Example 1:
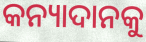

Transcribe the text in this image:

କନ୍ୟାଦାନକୁ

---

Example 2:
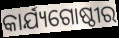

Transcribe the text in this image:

କାର୍ଯ୍ୟଗୋଷ୍ଠୀର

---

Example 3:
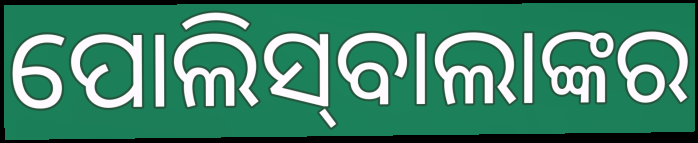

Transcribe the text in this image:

ପୋଲିସ୍‌ବାଲାଙ୍କର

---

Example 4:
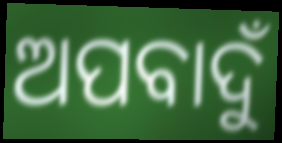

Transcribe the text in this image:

ଅପବାଦୁଁ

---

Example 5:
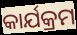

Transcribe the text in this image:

କାର୍ଯକ୍ରମ